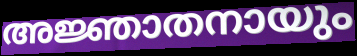
അജ്ഞാതനായും